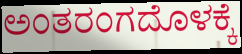
ಅಂತರಂಗದೊಳಕ್ಕೆ